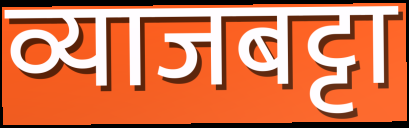
व्याजबट्टा